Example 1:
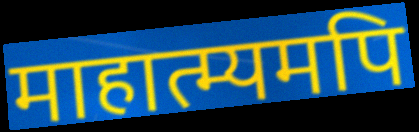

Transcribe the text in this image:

माहात्म्यमपि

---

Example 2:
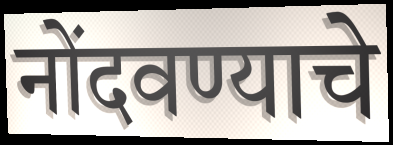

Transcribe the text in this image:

नोंदवण्याचे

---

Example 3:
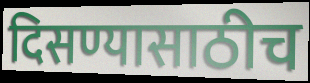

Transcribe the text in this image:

दिसण्यासाठीच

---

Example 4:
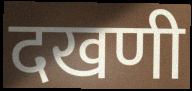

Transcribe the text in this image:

दखणी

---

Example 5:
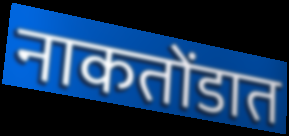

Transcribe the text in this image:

नाकतोंडात